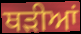
ਥੜੀਆਂ